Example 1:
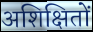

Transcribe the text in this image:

अशिक्षितों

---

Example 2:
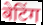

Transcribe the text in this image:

बेटिंग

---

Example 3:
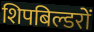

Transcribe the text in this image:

शिपबिल्डरों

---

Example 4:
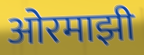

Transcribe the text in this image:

ओरमाझी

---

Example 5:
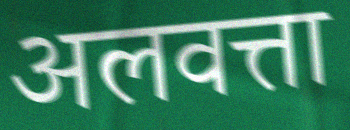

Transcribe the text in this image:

अलवत्ता